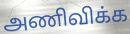
அணிவிக்க